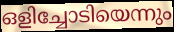
ഒളിച്ചോടിയെന്നും